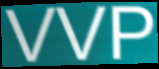
VVP